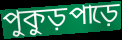
পুকুড়পাড়ে